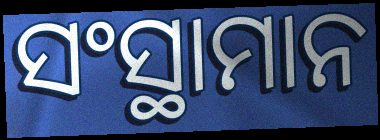
ସଂସ୍ଥାମାନ